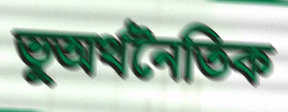
ভূঅর্থনৈতিক